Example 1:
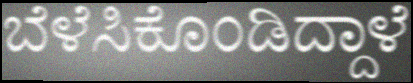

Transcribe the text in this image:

ಬೆಳೆಸಿಕೊಂಡಿದ್ದಾಳೆ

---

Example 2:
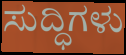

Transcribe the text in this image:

ಸುದ್ಧಿಗಳು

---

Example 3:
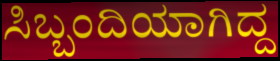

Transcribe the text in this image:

ಸಿಬ್ಬಂದಿಯಾಗಿದ್ದ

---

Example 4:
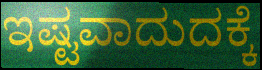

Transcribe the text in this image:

ಇಷ್ಟವಾದುದಕ್ಕೆ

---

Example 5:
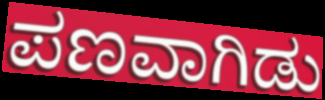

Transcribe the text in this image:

ಪಣವಾಗಿಡು